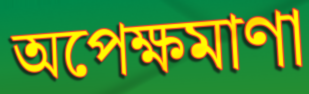
অপেক্ষমাণা